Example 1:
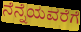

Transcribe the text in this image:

ನೆನ್ನೆಯವರೆಗೆ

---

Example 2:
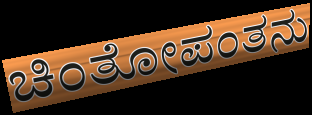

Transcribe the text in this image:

ಚಿಂತೋಪಂತನು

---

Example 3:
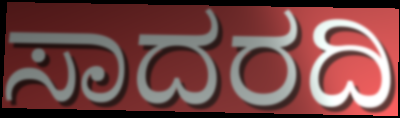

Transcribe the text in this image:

ಸಾದರದಿ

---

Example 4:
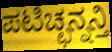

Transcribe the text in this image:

ಪಟಿಚ್ಛನ್ನನ್ತಿ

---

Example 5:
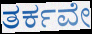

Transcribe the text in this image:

ತರ್ಕವೇ